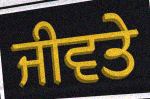
ਜੀਵਤੇ